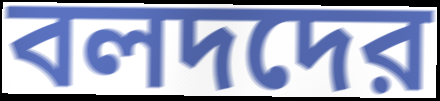
বলদদের